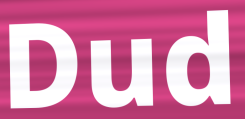
Dud